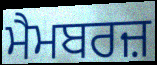
ਮੈਮਬਰਜ਼